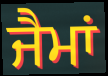
ਜੈਮਾਂ